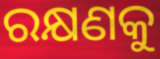
ରକ୍ଷଣକୁ